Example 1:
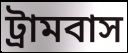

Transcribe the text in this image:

ট্রামবাস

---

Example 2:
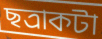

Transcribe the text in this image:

ছত্রাকটা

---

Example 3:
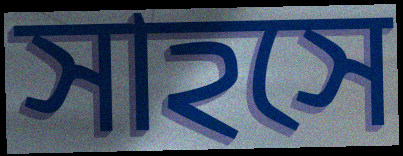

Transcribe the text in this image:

সাহসে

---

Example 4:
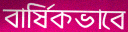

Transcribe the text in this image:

বার্ষিকভাবে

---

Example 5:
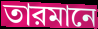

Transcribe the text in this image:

তারমানে